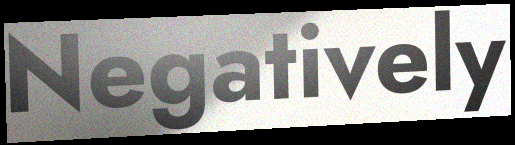
Negatively